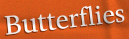
Butterflies